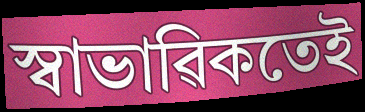
স্বাভাৱিকতেই